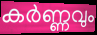
കർണ്ണവും